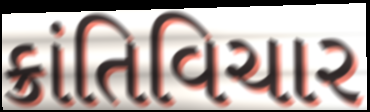
ક્રાંતિવિચાર